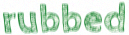
rubbed